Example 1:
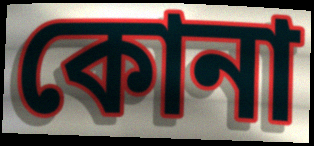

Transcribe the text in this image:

কোনা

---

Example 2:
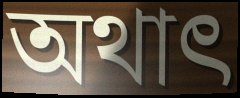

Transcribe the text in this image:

অথাৎ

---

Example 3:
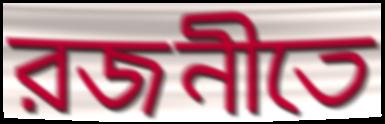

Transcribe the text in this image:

রজনীতে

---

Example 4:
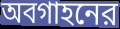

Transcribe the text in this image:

অবগাহনের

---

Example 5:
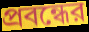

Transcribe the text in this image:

প্রবন্ধের